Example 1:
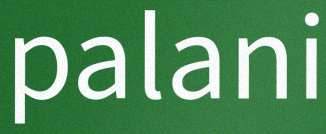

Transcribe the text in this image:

palani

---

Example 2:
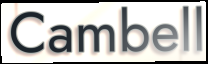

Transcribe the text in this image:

Cambell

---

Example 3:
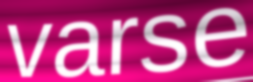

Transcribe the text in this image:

varse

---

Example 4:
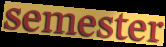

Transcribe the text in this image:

semester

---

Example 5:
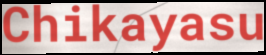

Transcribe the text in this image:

Chikayasu